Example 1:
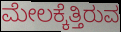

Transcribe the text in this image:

ಮೇಲಕ್ಕೆತ್ತಿರುವ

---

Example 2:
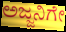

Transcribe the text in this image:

ಅಜ್ಜನಿಗೇ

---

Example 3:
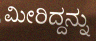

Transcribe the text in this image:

ಮೀರಿದ್ದನ್ನು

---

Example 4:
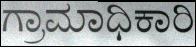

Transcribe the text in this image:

ಗ್ರಾಮಾಧಿಕಾರಿ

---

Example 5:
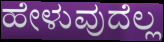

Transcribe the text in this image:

ಹೇಳುವುದೆಲ್ಲ